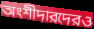
অংশীদারদেরও